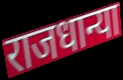
राजधान्या